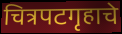
चित्रपटगृहाचे